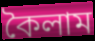
কৈলাম